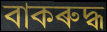
বাকৰুদ্ধ